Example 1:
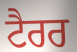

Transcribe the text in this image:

ਟੈਰਰ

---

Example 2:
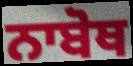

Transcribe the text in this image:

ਨਾਬੋਥ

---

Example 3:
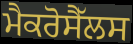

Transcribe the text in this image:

ਮੈਕਰੋਸੈੱਲਸ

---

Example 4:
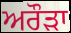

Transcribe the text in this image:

ਅਰੌੜਾ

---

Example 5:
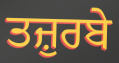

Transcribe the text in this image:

ਤਜ਼ੁਰਬੇ